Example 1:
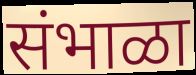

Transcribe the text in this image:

संभाळा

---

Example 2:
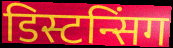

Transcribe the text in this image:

डिस्टन्सिंग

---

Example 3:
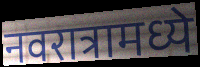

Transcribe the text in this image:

नवरात्रामध्ये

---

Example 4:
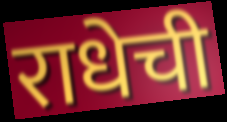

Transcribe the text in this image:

राधेची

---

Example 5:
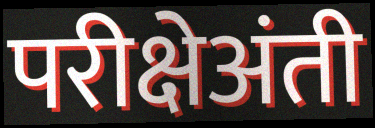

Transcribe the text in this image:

परीक्षेअंती